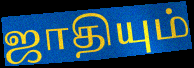
ஜாதியும்